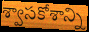
శ్వాసకోశాన్ని